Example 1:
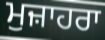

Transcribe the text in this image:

ਮੁਜ਼ਾਹਰਾ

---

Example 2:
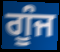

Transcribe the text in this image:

ਗੂੰਜ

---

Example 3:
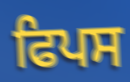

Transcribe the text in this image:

ਫਿਪਸ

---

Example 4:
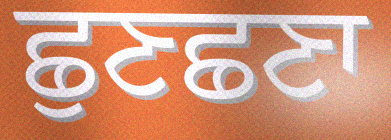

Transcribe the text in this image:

ਛੁਣਛਣਾ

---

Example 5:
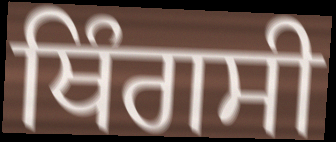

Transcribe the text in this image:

ਥਿੰਗਸੀ